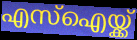
എസ്ഐയ്ക്ക്